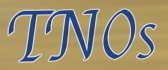
TNOs